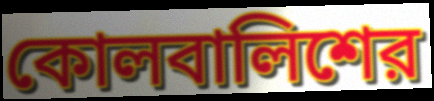
কোলবালিশের